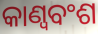
କାଣ୍ୱବଂଶ